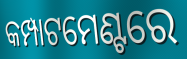
କମ୍ପାଟମେଣ୍ଟରେ